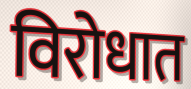
विरोधात